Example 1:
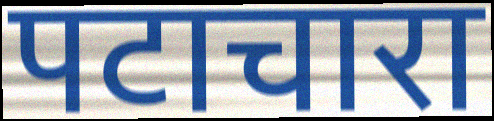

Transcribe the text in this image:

पटाचारा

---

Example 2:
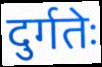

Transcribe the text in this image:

दुर्गतेः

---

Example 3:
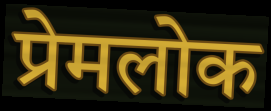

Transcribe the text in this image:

प्रेमलोक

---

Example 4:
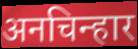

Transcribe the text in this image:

अनचिन्हार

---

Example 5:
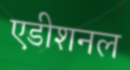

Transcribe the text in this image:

एडीशनल